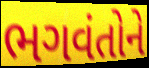
ભગવંતોને